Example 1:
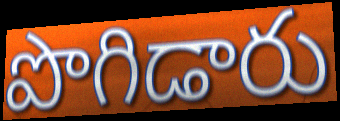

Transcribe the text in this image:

పొగిడారు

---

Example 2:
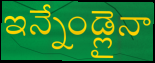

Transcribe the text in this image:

ఇన్నేండ్లైనా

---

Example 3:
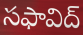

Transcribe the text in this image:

సఫావిద్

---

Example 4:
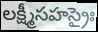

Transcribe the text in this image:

లక్ష్మీసహస్రైః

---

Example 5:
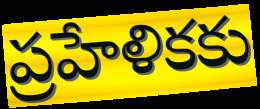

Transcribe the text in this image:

ప్రహేళికకు